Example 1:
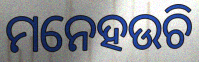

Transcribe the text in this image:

ମନେହଉଚି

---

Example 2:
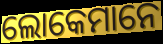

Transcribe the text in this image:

ଲୋକେମାନେ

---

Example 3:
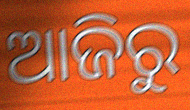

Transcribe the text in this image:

ଆଜିରୁ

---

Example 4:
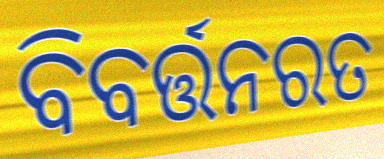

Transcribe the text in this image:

ବିବର୍ତ୍ତନରତ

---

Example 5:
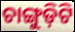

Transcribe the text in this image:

ଚାଙ୍ଗୁଡ଼ିଟି